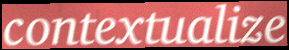
contextualize